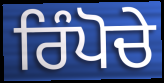
ਰਿੰਪੋਚੇ